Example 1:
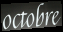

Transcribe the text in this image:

octobre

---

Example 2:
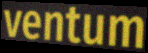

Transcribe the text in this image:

ventum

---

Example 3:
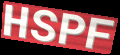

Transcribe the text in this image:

HSPF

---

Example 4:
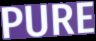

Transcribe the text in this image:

PURE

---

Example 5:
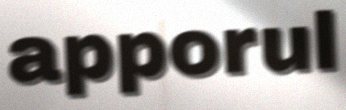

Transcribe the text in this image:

apporul